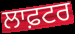
ਲਾਫ਼ਟਰ